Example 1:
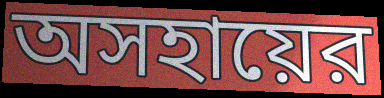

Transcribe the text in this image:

অসহায়ের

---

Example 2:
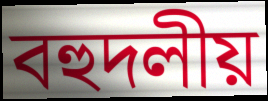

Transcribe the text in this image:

বহুদলীয়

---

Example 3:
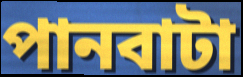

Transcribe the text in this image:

পানবাটা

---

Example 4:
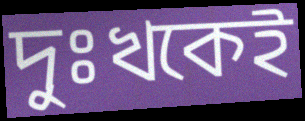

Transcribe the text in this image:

দুঃখকেই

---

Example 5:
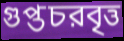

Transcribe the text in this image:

গুপ্তচরবৃত্ত